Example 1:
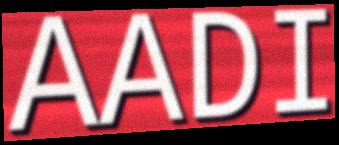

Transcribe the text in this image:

AADI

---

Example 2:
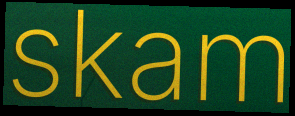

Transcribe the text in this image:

skam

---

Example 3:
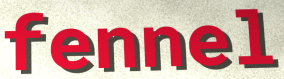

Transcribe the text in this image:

fennel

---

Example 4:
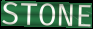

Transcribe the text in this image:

STONE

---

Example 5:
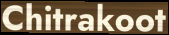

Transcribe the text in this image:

Chitrakoot